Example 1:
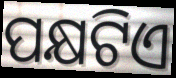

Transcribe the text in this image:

ପକ୍ଷଟିଏ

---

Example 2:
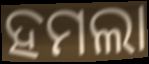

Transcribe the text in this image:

ହମଲା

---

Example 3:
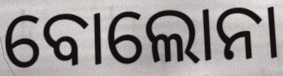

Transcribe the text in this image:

ବୋଲୋନା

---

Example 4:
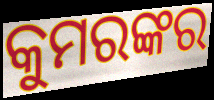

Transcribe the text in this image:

କୁମରଙ୍କର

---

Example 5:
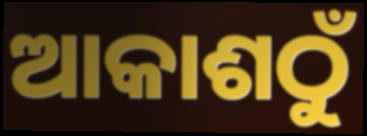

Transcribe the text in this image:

ଆକାଶଠୁଁ